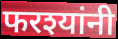
फरश्यांनी